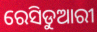
ରେସିଡୁଆରୀ